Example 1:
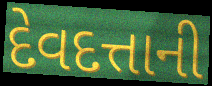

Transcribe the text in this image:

દેવદત્તાની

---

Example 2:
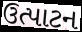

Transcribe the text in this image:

ઉત્પાટન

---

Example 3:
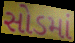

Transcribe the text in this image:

સોડમાં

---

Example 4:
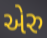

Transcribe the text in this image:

એરુ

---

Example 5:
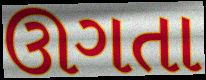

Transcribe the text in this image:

ઊગતા